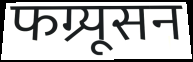
फग्र्यूसन